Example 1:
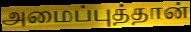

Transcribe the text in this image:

அமைப்புத்தான்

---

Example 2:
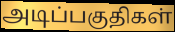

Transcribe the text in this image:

அடிப்பகுதிகள்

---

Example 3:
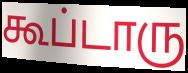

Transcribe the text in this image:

கூப்டாரு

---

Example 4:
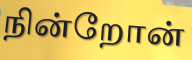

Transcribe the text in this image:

நின்றோன்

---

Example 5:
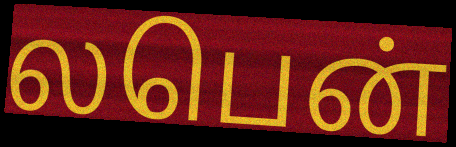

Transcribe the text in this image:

லபென்